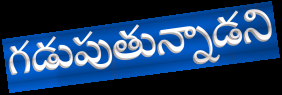
గడుపుతున్నాడని